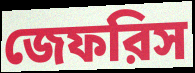
জেফরিস